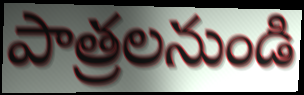
పాత్రలనుండి